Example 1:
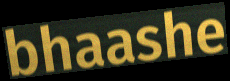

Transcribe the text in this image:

bhaashe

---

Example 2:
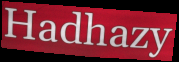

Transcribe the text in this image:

Hadhazy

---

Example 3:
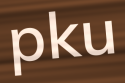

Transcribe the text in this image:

pku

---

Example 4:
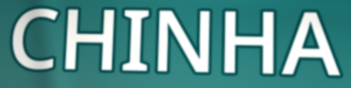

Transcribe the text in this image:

CHINHA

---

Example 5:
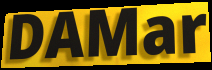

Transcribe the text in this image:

DAMar